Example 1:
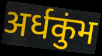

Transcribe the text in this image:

अर्धकुंभ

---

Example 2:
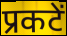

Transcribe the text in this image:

प्रकटें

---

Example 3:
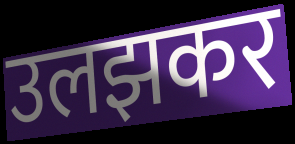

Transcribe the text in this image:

उलझकर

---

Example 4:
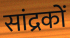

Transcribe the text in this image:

सांद्रकों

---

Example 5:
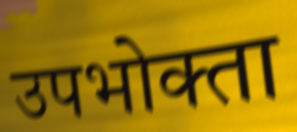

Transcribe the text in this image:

उपभोक्ता